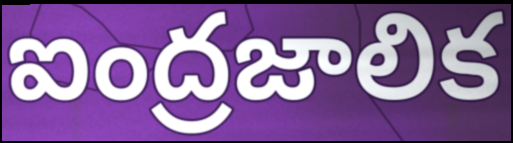
ఐంద్రజాలిక